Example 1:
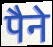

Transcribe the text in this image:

पैने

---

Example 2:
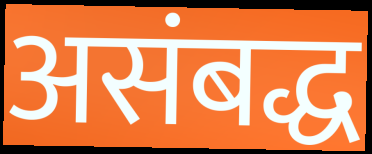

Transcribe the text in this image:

असंबद्ध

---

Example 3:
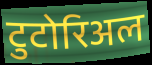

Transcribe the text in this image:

टुटोरिअल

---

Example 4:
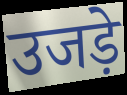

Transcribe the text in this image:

उजड़े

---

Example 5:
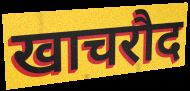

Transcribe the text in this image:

खाचरौद